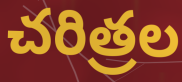
చరిత్రల